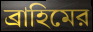
ব্রাহিমের